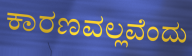
ಕಾರಣವಲ್ಲವೆಂದು